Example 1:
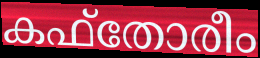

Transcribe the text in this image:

കഫ്തോരീം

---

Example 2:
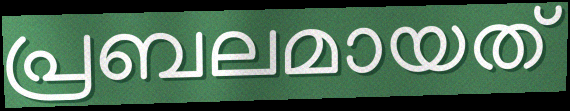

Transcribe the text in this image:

പ്രബലമായത്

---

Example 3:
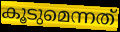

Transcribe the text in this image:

കൂടുമെന്നത്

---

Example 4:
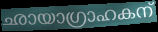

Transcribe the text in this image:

ഛായാഗ്രാഹകന്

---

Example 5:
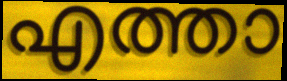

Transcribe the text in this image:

എത്താ